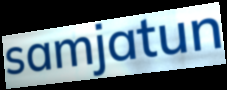
samjatun